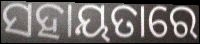
ସହାୟତାରେ